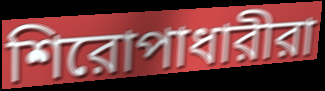
শিরোপাধারীরা